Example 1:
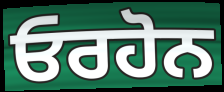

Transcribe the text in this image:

ਓਰਹੋਨ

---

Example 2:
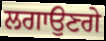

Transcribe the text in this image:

ਲਗਾਉਣਗੇ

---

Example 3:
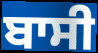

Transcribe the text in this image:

ਬਾਸੀ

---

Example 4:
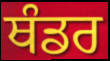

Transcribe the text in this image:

ਥੰਡਰ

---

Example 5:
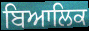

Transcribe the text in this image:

ਬਿਆਲਿਕ